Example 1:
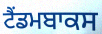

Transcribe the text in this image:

ਟੈਂਡਮਬਾਕਸ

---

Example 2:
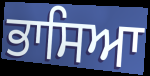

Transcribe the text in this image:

ਭਾਸਿਆ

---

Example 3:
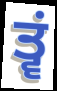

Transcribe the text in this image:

ਤ੍ਵਂ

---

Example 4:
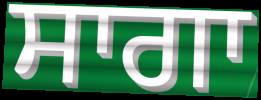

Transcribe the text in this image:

ਸਾਗਾ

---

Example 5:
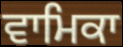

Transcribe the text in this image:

ਵਾਮਿਕਾ